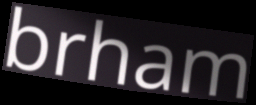
brham